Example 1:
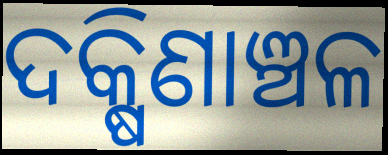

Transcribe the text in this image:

ଦକ୍ଷିଣାଞ୍ଚଳ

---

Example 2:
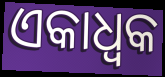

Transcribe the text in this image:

ଏକାଧ୍ଵକ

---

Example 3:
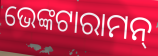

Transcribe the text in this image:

ଭେଙ୍କଟାରାମନ୍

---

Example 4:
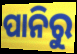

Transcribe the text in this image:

ପାନିରୁ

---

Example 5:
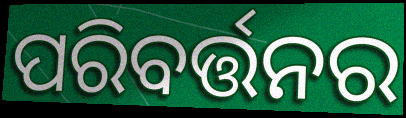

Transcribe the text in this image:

ପରିବର୍ତ୍ତନର